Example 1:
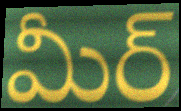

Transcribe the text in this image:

మీర్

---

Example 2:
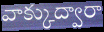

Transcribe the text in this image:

వాక్కుద్వారా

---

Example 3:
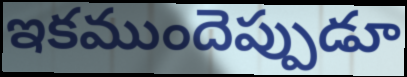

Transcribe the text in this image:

ఇకముందెప్పుడూ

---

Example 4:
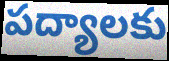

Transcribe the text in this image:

పద్యాలకు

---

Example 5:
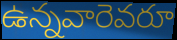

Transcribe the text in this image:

ఉన్నవారెవరూ